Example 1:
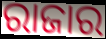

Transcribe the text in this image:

ରାଜାର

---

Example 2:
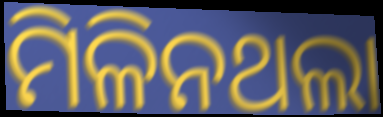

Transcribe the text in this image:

ମିଳିନଥଲା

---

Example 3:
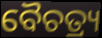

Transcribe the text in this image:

ବୈଚତ୍ର୍ୟ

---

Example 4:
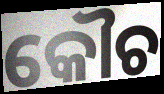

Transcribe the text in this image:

କୌଚ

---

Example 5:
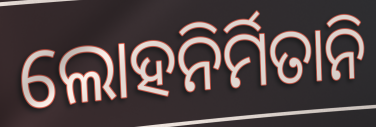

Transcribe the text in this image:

ଲୋହନିର୍ମିତାନି